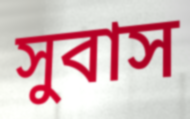
সুবাস